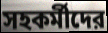
সহকর্মীদের